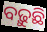
ବଢ଼ୁଛି